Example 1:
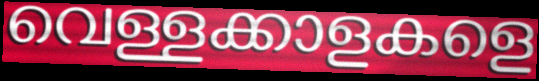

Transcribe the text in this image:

വെള്ളക്കാളകളെ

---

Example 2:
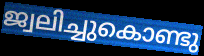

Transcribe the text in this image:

ജ്വലിച്ചുകൊണ്ടു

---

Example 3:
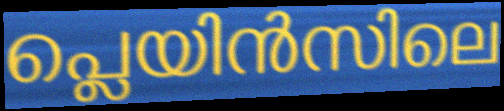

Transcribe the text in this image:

പ്ലെയിൻസിലെ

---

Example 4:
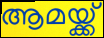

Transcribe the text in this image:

ആമയ്ക്ക്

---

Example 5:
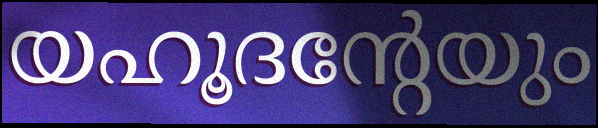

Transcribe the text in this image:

യഹൂദന്റേയും